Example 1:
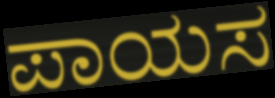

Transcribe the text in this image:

ಪಾಯಸ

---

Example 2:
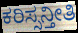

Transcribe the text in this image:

ಕರಿಸ್ಸನ್ತೀತಿ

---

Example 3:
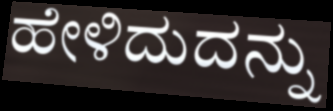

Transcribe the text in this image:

ಹೇಳಿದುದನ್ನು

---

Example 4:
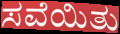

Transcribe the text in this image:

ಸವೆಯಿತು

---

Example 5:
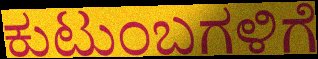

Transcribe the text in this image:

ಕುಟುಂಬಗಳಿಗೆ